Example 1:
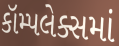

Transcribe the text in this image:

કૉમ્પલેક્સમાં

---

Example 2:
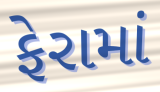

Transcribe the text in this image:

ફેરામાં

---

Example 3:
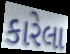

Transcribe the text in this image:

કારેલા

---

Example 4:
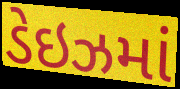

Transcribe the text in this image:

ડેઇઝમાં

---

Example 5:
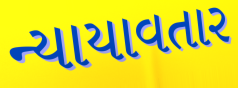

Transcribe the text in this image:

ન્યાયાવતાર